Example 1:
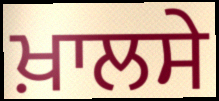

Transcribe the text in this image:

ਖ਼ਾਲਸੇ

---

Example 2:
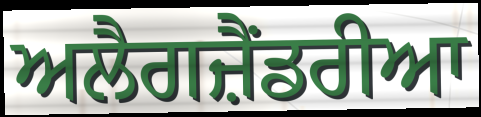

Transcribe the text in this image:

ਅਲੈਗਜ਼ੈਂਡਰੀਆ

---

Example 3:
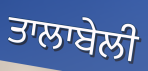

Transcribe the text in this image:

ਤਾਲਾਬੇਲੀ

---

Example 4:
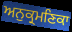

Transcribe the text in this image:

ਅਨੁਕ੍ਰਮਣਿਕਾ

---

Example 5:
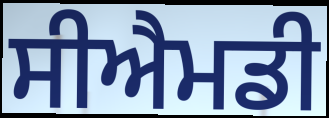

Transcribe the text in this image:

ਸੀਐਮਡੀ